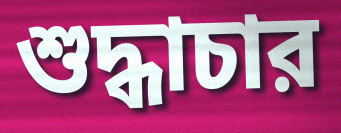
শুদ্ধাচার